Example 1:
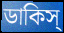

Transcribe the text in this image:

ডাকিস্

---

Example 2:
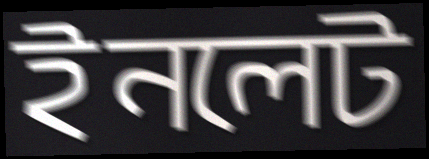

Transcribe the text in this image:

ইনলেট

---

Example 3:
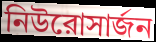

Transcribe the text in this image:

নিউরোসার্জন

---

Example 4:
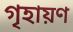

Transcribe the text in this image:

গৃহায়ণ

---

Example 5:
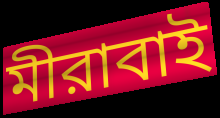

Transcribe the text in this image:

মীরাবাই